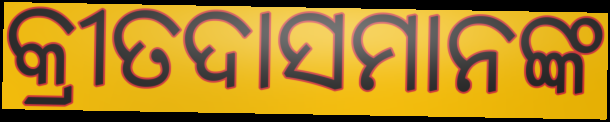
କ୍ରୀତଦାସମାନଙ୍କ